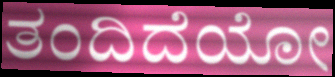
ತಂದಿದೆಯೋ